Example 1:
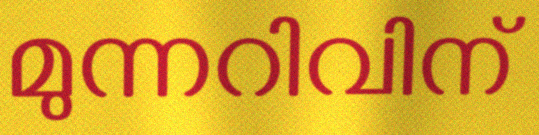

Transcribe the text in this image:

മുന്നറിവിന്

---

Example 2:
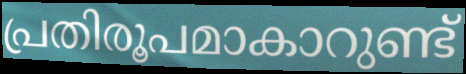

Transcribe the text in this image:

പ്രതിരൂപമാകാറുണ്ട്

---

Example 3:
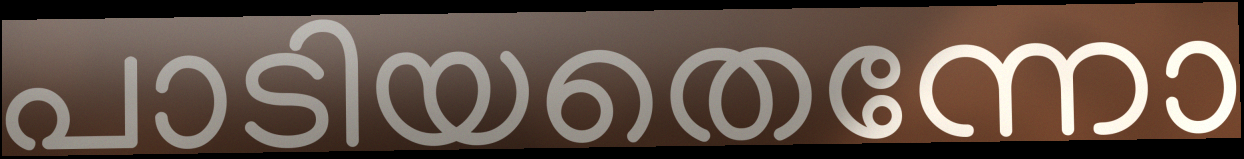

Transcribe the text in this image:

പാടിയതെന്നോ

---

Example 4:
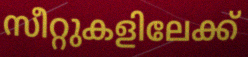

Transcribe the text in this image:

സീറ്റുകളിലേക്ക്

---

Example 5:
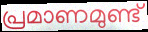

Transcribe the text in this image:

പ്രമാണമുണ്ട്